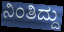
ನಿಂತಿದ್ದು